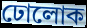
ঢোলোক